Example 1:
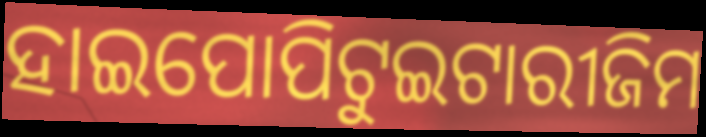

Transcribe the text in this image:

ହାଇପୋପିଟୁଇଟାରୀଜିମ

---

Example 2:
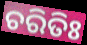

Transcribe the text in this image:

ଚରିତିଃ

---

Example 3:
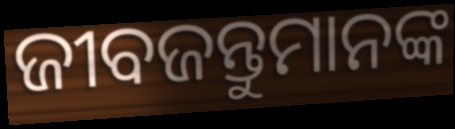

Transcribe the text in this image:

ଜୀବଜନ୍ତୁମାନଙ୍କ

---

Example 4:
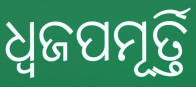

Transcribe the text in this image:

ଧ୍ୱଜପମୂର୍ତ୍ତି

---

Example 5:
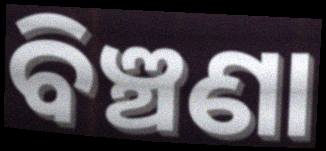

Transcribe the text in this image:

ବିଞ୍ଚଣା